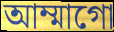
আম্মাগো